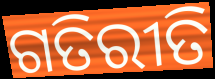
ଗତିରୀତି